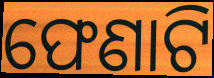
ଫେଣାଟି